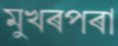
মুখৰপৰা